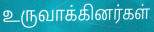
உருவாக்கினர்கள்